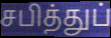
சபித்துப்